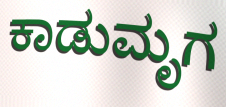
ಕಾಡುಮೃಗ